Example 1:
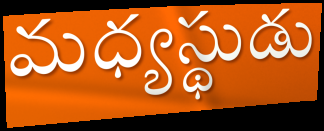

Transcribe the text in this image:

మధ్యస్థుడు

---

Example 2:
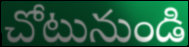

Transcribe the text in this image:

చోటునుండి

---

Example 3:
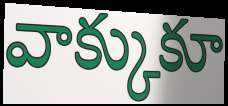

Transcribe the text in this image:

వాక్కుకూ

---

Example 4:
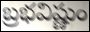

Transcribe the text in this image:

బ్రభవిష్ణుం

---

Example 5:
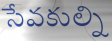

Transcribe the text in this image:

సేవకుల్ని